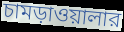
চামড়াওয়ালার